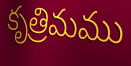
కృత్రిమము